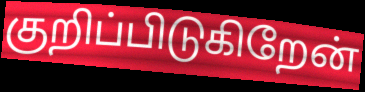
குறிப்பிடுகிறேன்